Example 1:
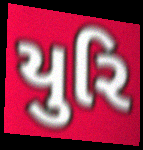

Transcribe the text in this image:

યુરિ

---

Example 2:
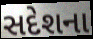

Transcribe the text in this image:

સદેશના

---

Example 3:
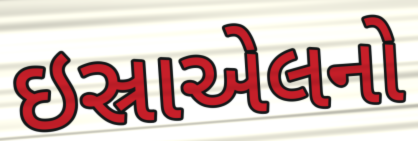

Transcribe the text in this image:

ઇસ્રાએલનો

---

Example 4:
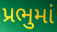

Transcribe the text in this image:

પ્રભુમાં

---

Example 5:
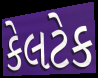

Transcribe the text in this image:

કેલટેક